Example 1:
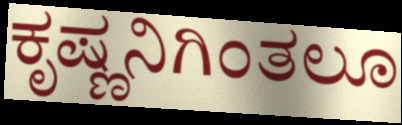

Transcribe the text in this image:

ಕೃಷ್ಣನಿಗಿಂತಲೂ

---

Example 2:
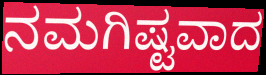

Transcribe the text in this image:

ನಮಗಿಷ್ಟವಾದ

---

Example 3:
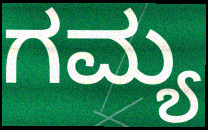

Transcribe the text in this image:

ಗಮ್ಯ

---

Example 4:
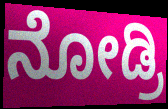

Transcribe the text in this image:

ನೋಡ್ರಿ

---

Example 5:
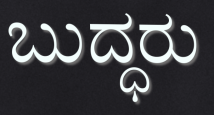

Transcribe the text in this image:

ಬುದ್ಧರು